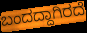
ಬಂದದ್ದಾಗಿರದೆ